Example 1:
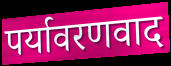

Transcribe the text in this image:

पर्यावरणवाद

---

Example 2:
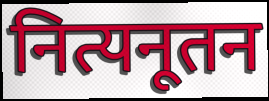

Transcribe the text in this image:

नित्यनूतन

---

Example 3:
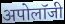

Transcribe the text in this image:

अपोलॉजी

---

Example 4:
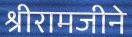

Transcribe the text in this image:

श्रीरामजीने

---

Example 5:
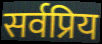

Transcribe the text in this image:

सर्वप्रिय